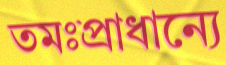
তমঃপ্রাধান্যে